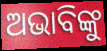
ଅଭାବିଙ୍କୁ